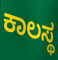
ಕಾಲಸ್ಥ